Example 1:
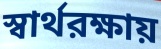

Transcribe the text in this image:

স্বার্থরক্ষায়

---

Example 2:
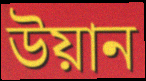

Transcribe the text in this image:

উয়ান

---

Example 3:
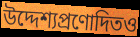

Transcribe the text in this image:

উদ্দেশ্যপ্রণোদিতও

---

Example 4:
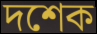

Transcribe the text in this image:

দশেক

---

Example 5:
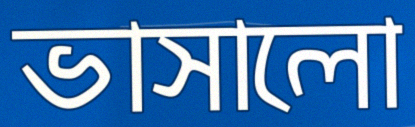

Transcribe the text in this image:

ভাসালো